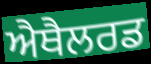
ਐਥੈਲਰਡ